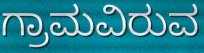
ಗ್ರಾಮವಿರುವ